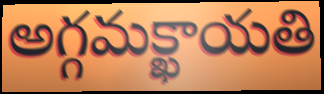
అగ్గమక్ఖాయతి